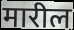
मारील